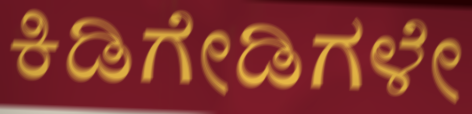
ಕಿಡಿಗೇಡಿಗಳೇ